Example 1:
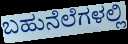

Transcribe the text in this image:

ಬಹುನೆಲೆಗಳಲ್ಲಿ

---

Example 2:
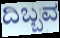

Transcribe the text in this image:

ದಿಬ್ಬವ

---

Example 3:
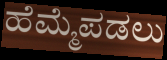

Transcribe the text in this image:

ಹೆಮ್ಮೆಪಡಲು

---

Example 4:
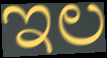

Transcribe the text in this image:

ಇಲ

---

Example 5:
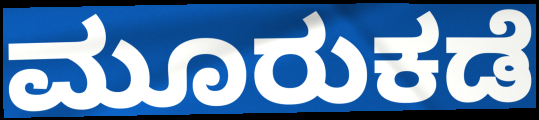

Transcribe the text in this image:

ಮೂರುಕಡೆ